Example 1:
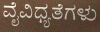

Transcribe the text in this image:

ವೈವಿಧ್ಯತೆಗಳು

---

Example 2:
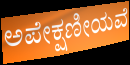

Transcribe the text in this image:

ಅಪೇಕ್ಷಣೀಯವೆ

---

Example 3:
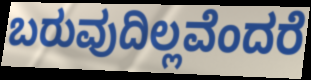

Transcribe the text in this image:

ಬರುವುದಿಲ್ಲವೆಂದರೆ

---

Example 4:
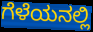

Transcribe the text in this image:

ಗೆಳೆಯನಲ್ಲಿ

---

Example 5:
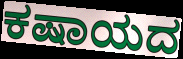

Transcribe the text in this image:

ಕಷಾಯದ